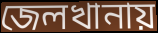
জেলখানায়